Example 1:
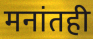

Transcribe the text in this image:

मनांतही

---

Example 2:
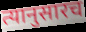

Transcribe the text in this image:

त्यानुसारच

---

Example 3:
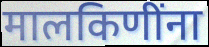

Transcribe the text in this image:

मालकिणींना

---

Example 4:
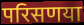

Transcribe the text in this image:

परिसणया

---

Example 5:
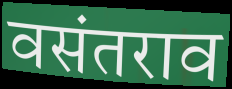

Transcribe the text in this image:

वसंतराव